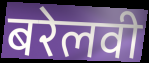
बरेलवी